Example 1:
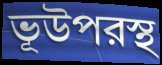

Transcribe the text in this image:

ভূউপরস্থ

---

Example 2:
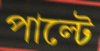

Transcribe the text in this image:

পাল্টে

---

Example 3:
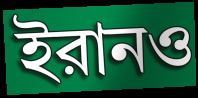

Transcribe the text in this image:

ইরানও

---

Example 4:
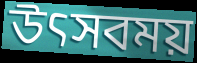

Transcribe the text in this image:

উৎসবময়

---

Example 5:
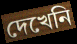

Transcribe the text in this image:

দেখেনি